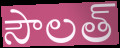
సౌలత్